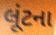
લૂંટના